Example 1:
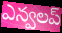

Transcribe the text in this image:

ఎన్వలప్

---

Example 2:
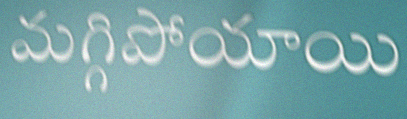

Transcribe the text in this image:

మగ్గిపోయాయి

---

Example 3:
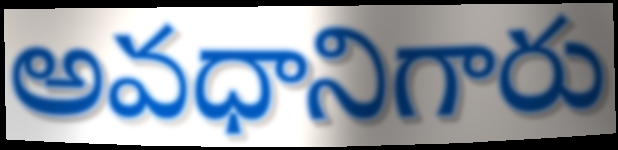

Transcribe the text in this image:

అవధానిగారు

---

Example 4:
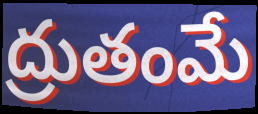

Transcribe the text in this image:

ద్రుతంమే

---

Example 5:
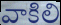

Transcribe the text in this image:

వాకిలి